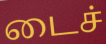
டைச்